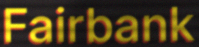
Fairbank